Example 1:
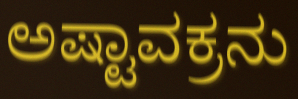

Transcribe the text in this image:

ಅಷ್ಟಾವಕ್ರನು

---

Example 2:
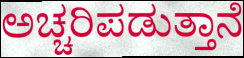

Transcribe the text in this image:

ಅಚ್ಚರಿಪಡುತ್ತಾನೆ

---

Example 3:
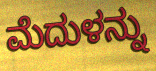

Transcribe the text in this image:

ಮೆದುಳನ್ನು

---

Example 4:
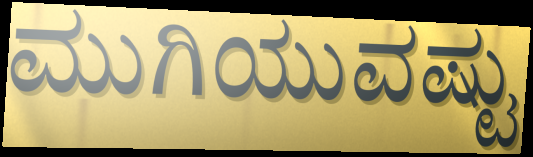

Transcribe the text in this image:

ಮುಗಿಯುವಷ್ಟು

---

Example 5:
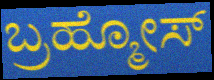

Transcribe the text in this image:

ಬ್ರಹ್ಮೋಸ್